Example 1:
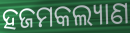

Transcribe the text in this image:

ହଜମକଲ୍ୟାଣ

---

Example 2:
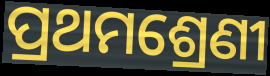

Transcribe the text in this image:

ପ୍ରଥମଶ୍ରେଣୀ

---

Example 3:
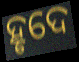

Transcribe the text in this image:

ହୃଦେ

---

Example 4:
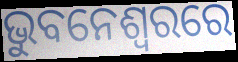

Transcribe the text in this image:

ଭୁବନେଶ୍ଵରରେ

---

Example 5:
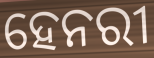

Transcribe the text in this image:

ହେନରୀ